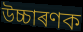
উচ্চাৰণক